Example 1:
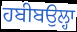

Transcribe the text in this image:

ਹਬੀਬਉਲ੍ਹਾ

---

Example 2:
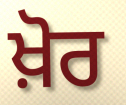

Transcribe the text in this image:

ਖ਼ੋਰ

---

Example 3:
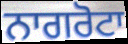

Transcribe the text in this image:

ਨਾਗਰੋਟਾ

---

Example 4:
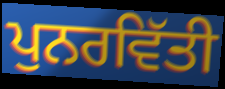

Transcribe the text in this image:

ਪੁਨਰਵਿੱਤੀ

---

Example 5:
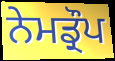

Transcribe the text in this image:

ਨੇਮਡ੍ਰੌਪ